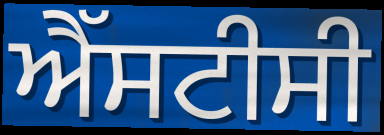
ਐੱਸਟੀਸੀ